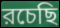
রচেছি